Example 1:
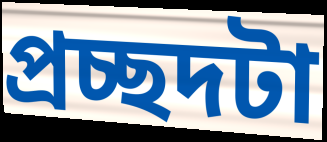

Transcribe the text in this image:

প্রচ্ছদটা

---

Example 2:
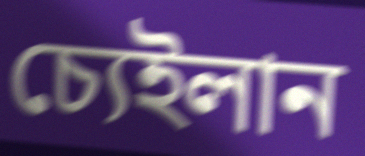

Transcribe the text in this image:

চ্যেইলান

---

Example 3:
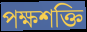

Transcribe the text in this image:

পক্ষশক্তি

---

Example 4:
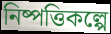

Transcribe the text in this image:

নিষ্পত্তিকল্পে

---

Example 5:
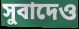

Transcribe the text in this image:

সুবাদেও